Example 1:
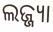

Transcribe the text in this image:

ଲଜ୍ଜ୍ୟା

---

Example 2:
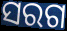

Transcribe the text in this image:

ସରଗ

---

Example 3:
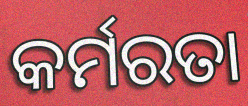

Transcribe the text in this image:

କର୍ମରତା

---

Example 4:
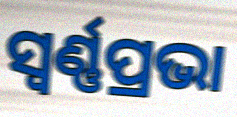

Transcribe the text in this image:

ସ୍ୱର୍ଣ୍ଣପ୍ରଭା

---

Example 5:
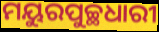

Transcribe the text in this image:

ମୟୁରପୁଚ୍ଛଧାରୀ